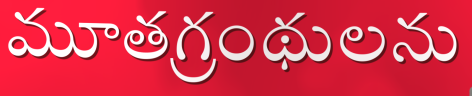
మూతగ్రంథులను